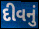
દીવનું